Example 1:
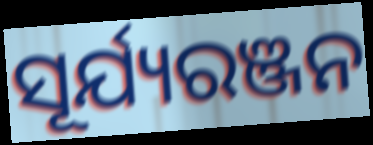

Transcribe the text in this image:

ସୂର୍ଯ୍ୟରଞ୍ଜନ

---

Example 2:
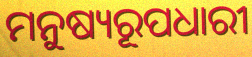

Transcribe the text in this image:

ମନୁଷ୍ୟରୂପଧାରୀ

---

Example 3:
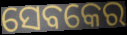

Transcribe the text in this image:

ସେବକେର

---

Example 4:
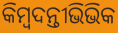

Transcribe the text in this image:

କିମ୍ବଦନ୍ତୀଭିଭିକ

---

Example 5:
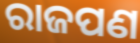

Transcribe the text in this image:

ରାଜପଣ